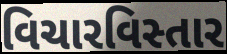
વિચારવિસ્તાર